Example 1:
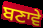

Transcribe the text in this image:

ਬਣਾਵੇ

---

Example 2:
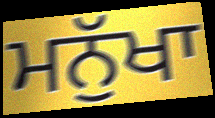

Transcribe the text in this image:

ਮਨੁੱਖਾ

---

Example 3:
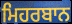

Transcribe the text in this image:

ਮਿਹਰਬਾਨ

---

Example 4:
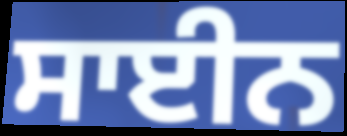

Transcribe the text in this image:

ਸਾਈਨ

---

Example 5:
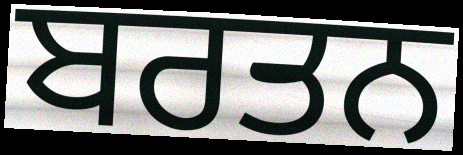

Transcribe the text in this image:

ਬਰਤਨ